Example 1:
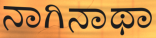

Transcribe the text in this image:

ನಾಗಿನಾಥಾ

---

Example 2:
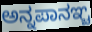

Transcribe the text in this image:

ಅನ್ನಪಾನಞ್ಚ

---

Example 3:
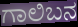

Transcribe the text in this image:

ಗಾಲಿಬನ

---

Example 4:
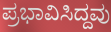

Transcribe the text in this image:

ಪ್ರಭಾವಿಸಿದ್ದವು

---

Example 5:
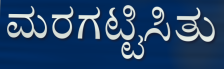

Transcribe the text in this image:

ಮರಗಟ್ಟಿಸಿತು